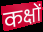
कक्षों